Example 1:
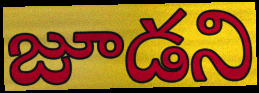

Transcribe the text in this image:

జూడని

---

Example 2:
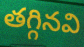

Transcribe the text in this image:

తగ్గినవి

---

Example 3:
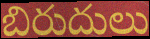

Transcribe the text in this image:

బిరుదులు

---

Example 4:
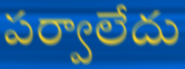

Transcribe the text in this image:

పర్వాలేదు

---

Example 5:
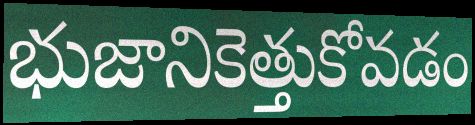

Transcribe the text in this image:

భుజానికెత్తుకోవడం